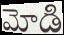
మోడి